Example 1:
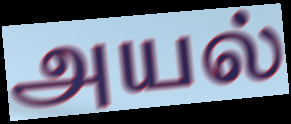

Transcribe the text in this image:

அயல்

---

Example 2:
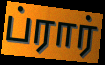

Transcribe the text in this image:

ப்ரார்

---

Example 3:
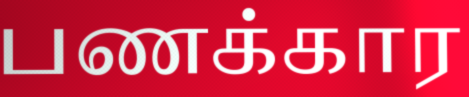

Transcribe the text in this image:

பணக்கார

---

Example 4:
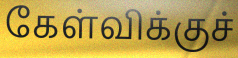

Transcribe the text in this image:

கேள்விக்குச்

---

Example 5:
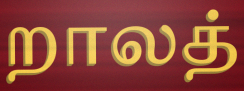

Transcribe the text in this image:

றாலத்